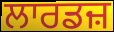
ਲਾਰਡਜ਼